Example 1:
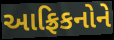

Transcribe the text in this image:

આફ્રિકનોને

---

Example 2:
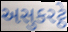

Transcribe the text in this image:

અસુકરટ્ઠે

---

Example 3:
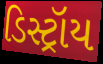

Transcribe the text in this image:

ડિસ્ટ્રૉય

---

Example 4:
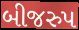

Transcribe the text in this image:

બીજરુપ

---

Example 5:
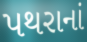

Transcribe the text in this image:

પથરાનાં